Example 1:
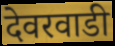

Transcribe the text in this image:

देवरवाडी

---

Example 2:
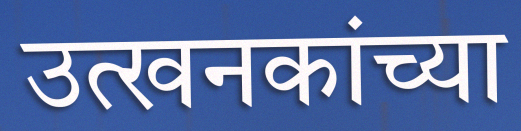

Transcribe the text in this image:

उत्खनकांच्या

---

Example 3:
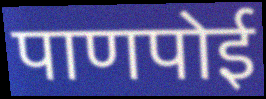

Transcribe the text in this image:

पाणपोई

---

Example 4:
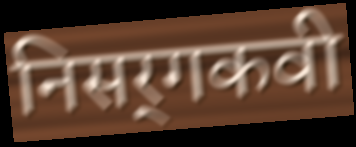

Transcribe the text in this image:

निसर्गकवी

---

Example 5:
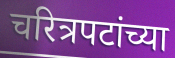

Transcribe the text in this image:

चरित्रपटांच्या